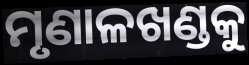
ମୃଣାଳଖଣ୍ଡକୁ